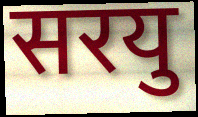
सरयु